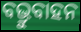
ବଭ୍ରୁବାହନ